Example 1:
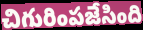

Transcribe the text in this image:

చిగురింపజేసింది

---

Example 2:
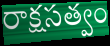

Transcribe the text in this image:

రాక్షసత్వం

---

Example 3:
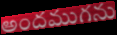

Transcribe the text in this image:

అందముగను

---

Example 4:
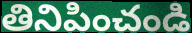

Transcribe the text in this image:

తినిపించండి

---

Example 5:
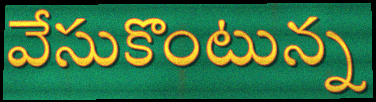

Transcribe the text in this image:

వేసుకొంటున్న